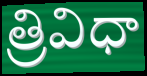
త్రివిధా